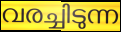
വരച്ചിടുന്ന